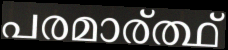
പരമാര്ത്ഥ്